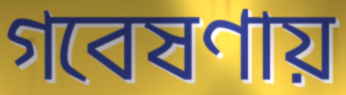
গবেষণায়